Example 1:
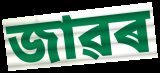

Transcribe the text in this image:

জাৱৰ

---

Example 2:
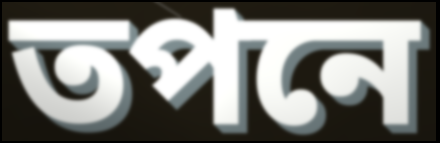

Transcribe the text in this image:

তপনে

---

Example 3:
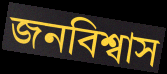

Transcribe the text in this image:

জনবিশ্বাস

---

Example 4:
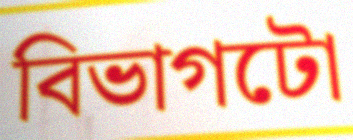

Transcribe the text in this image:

বিভাগটো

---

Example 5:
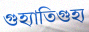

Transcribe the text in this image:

গুহ্যাতিগুহ্য